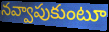
నవ్వాపుకుంటూ